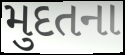
મુદતના